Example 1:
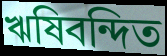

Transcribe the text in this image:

ঋষিবন্দিত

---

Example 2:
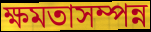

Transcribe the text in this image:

ক্ষমতাসম্পন্ন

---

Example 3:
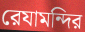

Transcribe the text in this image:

রেযামন্দির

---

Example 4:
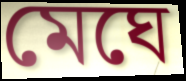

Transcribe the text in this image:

মেঘে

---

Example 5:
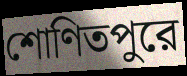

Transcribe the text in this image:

শোণিতপুরে